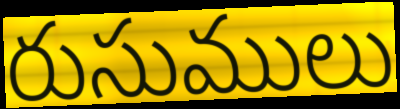
రుసుములు